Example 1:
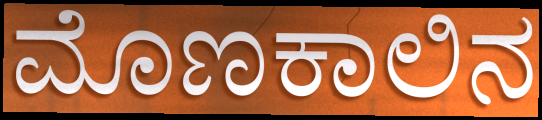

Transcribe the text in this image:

ಮೊಣಕಾಲಿನ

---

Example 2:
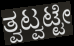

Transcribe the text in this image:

ತ್ವಟ್ವಟ್ಟೇ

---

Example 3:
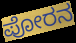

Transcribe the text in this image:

ಪೋರನ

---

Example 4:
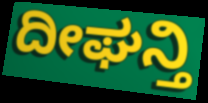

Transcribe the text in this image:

ದೀಘನ್ತಿ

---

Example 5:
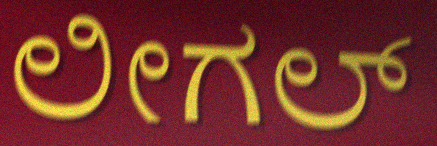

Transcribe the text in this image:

ಲೀಗಲ್